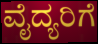
ವೈದ್ಯರಿಗೆ